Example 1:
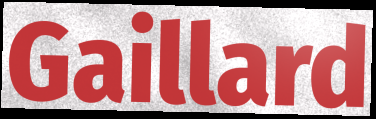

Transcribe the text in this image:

Gaillard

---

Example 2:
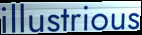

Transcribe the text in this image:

illustrious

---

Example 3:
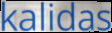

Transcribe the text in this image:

kalidas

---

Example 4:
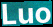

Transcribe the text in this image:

Luo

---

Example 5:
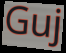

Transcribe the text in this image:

Guj